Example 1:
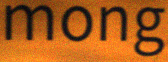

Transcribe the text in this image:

mong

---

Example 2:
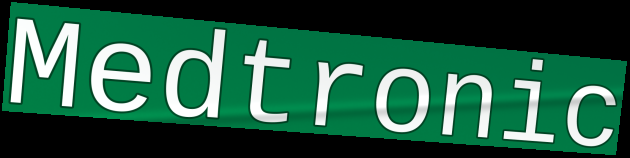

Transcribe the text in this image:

Medtronic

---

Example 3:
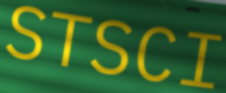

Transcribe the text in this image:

STSCI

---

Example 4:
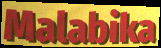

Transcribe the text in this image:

Malabika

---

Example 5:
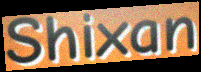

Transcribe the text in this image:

Shixan